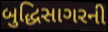
બુદ્ધિસાગરની